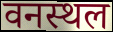
वनस्थल